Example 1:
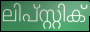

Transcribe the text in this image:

ലിപ്സ്റ്റിക്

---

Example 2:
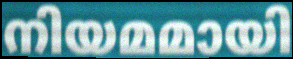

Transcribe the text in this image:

നിയമമായി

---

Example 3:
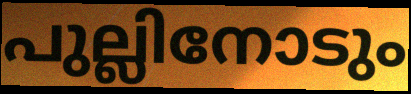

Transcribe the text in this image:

പുല്ലിനോടും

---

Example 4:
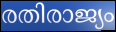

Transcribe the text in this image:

രതിരാജ്യം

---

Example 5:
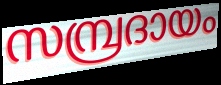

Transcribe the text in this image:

സമ്പ്രദായം